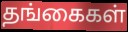
தங்கைகள்